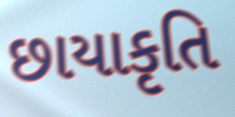
છાયાકૃતિ